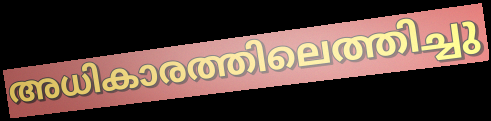
അധികാരത്തിലെത്തിച്ചു